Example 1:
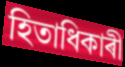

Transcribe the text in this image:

হিতাধিকাৰী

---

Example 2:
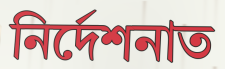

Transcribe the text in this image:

নিৰ্দেশনাত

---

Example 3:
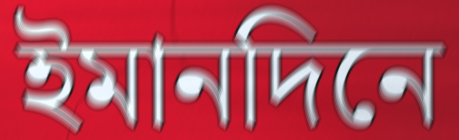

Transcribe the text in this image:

ইমানদিনে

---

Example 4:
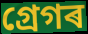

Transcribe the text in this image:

গ্ৰেগৰ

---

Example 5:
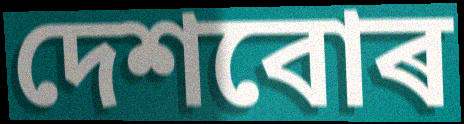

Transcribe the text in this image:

দেশবোৰ